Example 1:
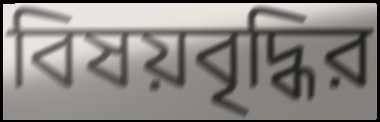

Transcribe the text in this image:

বিষয়বৃদ্ধির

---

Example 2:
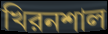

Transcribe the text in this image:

খিরনশাল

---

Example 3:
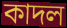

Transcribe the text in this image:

কাদল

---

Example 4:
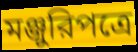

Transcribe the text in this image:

মঞ্জুরিপত্রে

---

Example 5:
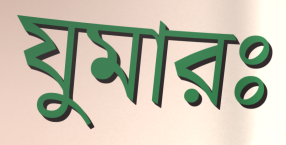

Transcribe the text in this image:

যুমারঃ